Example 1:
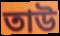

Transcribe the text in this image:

তাউ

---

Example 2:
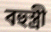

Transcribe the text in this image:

বহুস্ত্ৰী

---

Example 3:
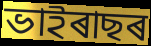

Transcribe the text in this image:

ভাইৰাছৰ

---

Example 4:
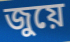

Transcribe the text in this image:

জুয়ে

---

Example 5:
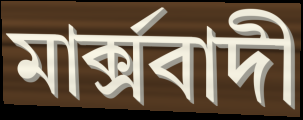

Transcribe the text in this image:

মাৰ্ক্সবাদী